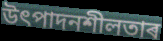
উৎপাদনশীলতাৰ